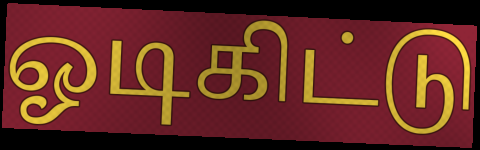
ஓடிகிட்டு